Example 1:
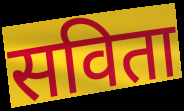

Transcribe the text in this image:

सविता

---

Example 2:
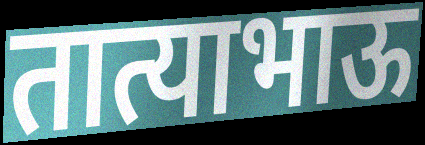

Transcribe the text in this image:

तात्याभाऊ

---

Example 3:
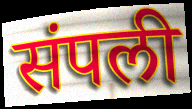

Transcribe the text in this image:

संपली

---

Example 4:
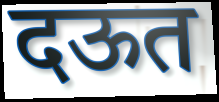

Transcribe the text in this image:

दऊत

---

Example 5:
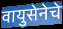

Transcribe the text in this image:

वायुसेनेचे